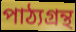
পাঠ্যগ্রন্থ